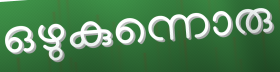
ഒഴുകുന്നൊരു